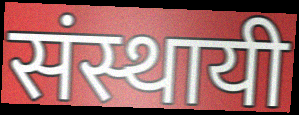
संस्थायी